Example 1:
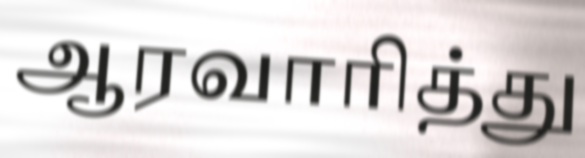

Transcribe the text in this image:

ஆரவாரித்து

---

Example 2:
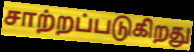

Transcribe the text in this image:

சாற்றப்படுகிறது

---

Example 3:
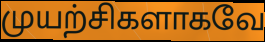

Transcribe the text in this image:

முயற்சிகளாகவே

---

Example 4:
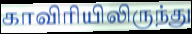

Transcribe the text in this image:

காவிரியிலிருந்து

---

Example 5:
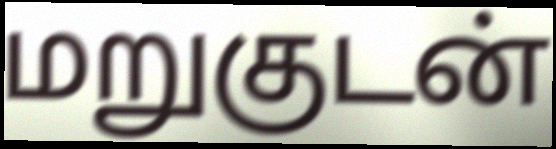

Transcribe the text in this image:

மறுகுடன்